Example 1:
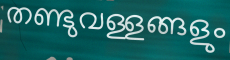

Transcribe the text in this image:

തണ്ടുവള്ളങ്ങളും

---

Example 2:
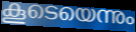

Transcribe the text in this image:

കൂടെയെന്നും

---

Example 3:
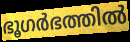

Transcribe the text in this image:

ഭൂഗർഭത്തിൽ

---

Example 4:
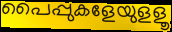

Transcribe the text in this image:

പൈപ്പുകളേയുളളൂ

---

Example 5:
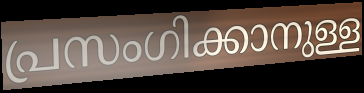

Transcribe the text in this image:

പ്രസംഗിക്കാനുള്ള